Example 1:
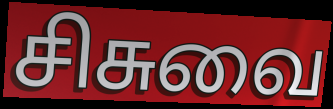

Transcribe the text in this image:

சிசுவை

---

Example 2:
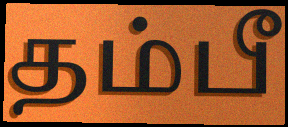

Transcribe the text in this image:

தம்பீ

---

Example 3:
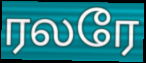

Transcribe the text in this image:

ரலரே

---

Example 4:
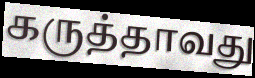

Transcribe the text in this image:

கருத்தாவது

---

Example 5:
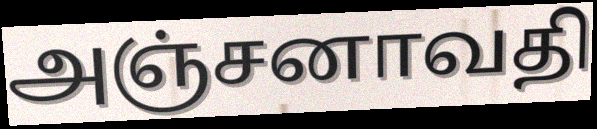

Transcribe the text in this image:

அஞ்சனாவதி